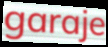
garaje